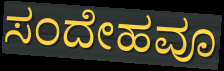
ಸಂದೇಹವೂ